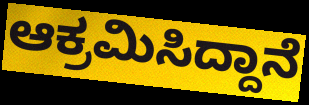
ಆಕ್ರಮಿಸಿದ್ದಾನೆ